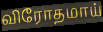
விரோதமாய்